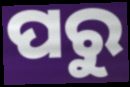
ପରୁ